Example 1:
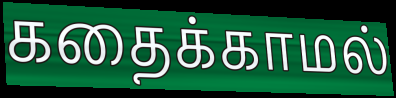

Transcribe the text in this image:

கதைக்காமல்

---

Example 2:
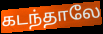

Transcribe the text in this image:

கடந்தாலே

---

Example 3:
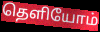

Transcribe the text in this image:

தெளியோம்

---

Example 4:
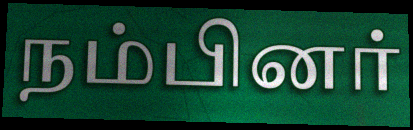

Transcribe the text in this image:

நம்பினர்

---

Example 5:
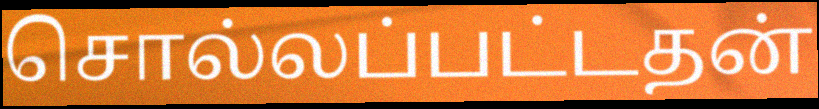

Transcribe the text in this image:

சொல்லப்பட்டதன்